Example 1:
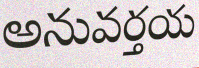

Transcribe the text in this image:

అనువర్తయ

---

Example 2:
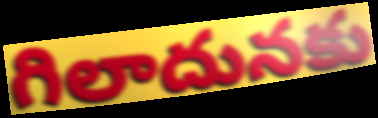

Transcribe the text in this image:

గిలాదునకు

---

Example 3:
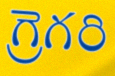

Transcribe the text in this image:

గ్రెగరి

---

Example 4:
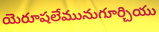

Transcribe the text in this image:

యెరూషలేమునుగూర్చియు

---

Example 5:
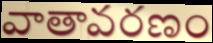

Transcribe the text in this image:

వాతావరణం